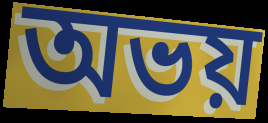
অভয়